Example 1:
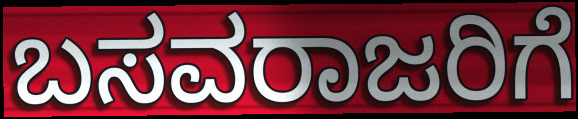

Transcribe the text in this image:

ಬಸವರಾಜರಿಗೆ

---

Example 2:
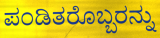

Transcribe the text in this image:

ಪಂಡಿತರೊಬ್ಬರನ್ನು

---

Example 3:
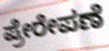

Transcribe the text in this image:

ಪ್ರೇರೇಪಣೆ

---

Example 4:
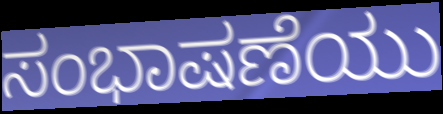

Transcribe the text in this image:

ಸಂಭಾಷಣೆಯು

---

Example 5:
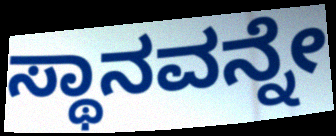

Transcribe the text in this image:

ಸ್ಥಾನವನ್ನೇ